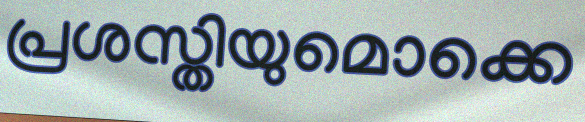
പ്രശസ്തിയുമൊക്കെ